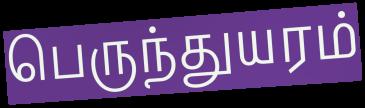
பெருந்துயரம்